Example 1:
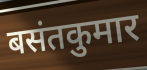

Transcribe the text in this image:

बसंतकुमार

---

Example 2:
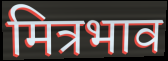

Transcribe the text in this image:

मित्रभाव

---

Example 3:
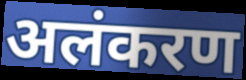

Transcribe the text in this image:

अलंकरण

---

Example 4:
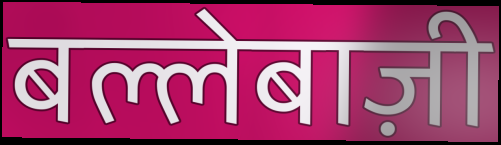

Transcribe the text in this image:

बल्लेबाज़ी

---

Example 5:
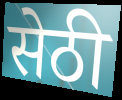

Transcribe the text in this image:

सेठी